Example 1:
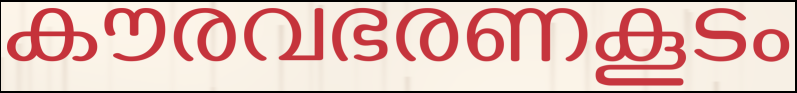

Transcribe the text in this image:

കൗരവഭരണകൂടം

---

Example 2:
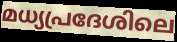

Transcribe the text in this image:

മധ്യപ്രദേശിലെ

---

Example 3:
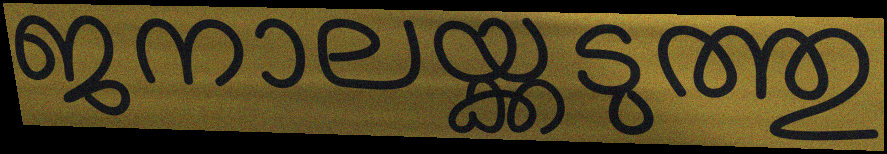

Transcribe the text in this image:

ജനാലയ്ക്കടുത്തു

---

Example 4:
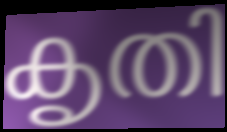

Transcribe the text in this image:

കൃതി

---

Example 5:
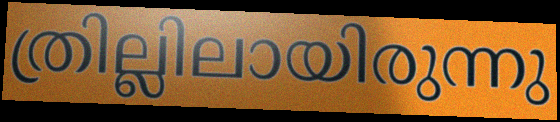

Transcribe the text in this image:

ത്രില്ലിലായിരുന്നു